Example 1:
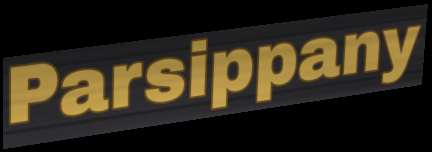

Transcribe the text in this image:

Parsippany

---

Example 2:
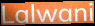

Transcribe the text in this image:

Lalwani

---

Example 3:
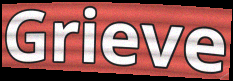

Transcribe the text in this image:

Grieve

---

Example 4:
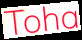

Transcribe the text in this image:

Toha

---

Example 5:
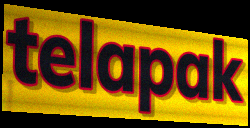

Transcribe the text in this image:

telapak